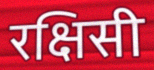
रक्षिसी